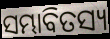
ସମ୍ଭାବିତସ୍ୟ